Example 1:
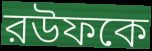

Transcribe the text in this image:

রউফকে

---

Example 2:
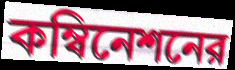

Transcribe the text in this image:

কম্বিনেশনের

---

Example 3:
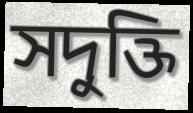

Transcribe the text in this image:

সদুক্তি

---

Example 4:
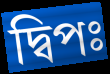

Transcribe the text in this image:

দ্বিপঃ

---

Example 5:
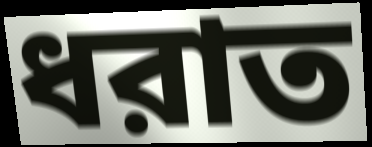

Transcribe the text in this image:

ধরাত